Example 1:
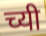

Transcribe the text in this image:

च्यी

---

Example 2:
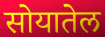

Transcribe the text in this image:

सोयातेल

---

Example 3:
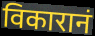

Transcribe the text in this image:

विकारानं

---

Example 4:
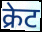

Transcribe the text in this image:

क्रेट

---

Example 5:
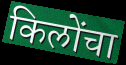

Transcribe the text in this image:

किलोंचा